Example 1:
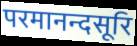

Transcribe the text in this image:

परमानन्दसूरि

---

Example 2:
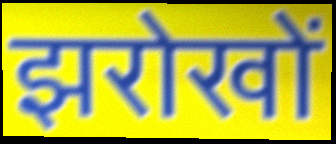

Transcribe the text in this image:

झरोखों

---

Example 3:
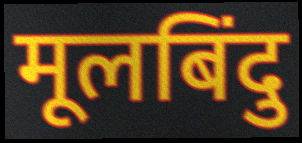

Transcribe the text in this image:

मूलबिंदु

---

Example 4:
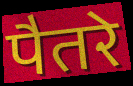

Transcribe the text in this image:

पैतरे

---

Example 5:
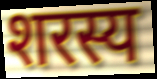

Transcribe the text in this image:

शरस्य